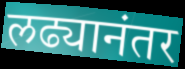
लढ्यानंतर